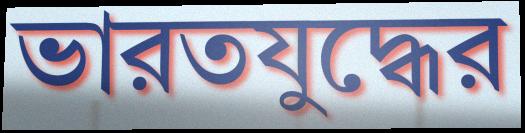
ভারতযুদ্ধের